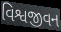
વિશ્વજીવન